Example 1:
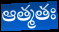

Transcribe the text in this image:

ఆత్మతః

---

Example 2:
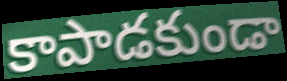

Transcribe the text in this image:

కాపాడకుండా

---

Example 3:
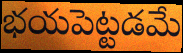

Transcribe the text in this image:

భయపెట్టడమే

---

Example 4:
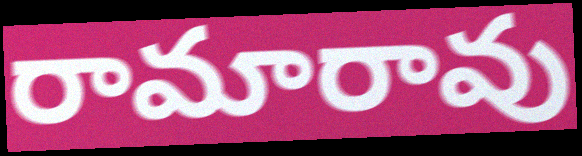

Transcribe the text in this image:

రామారావు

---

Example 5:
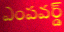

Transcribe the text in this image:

ఎంపవర్డ్